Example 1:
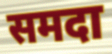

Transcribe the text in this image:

समदा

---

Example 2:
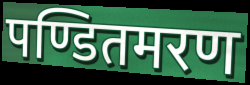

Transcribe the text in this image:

पण्डितमरण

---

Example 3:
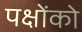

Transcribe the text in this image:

पक्षोंको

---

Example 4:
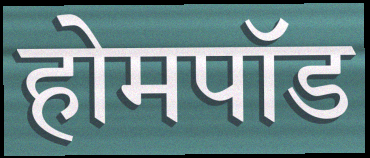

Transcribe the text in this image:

होमपॉड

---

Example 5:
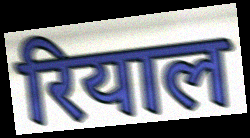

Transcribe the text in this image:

रियाल